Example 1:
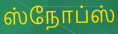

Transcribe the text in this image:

ஸ்நோப்ஸ்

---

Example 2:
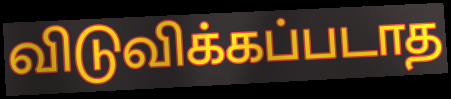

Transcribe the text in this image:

விடுவிக்கப்படாத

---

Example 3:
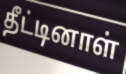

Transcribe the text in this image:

தீட்டினாள்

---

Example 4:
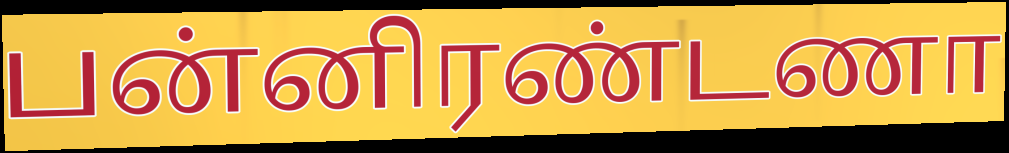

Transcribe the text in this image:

பன்னிரண்டணா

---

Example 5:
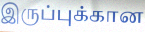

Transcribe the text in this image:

இருப்புக்கான